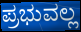
ಪ್ರಭುವಲ್ಲ